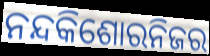
ନନ୍ଦକିଶୋରନିଜର